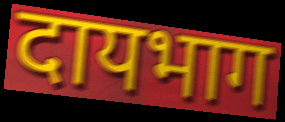
दायभाग